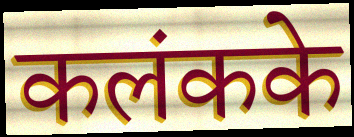
कलंकके